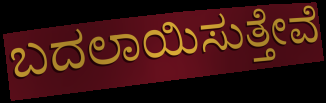
ಬದಲಾಯಿಸುತ್ತೇವೆ